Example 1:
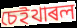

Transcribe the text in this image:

চেইথাৰল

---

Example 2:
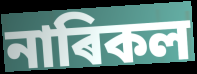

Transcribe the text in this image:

নাৰিকল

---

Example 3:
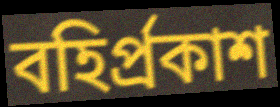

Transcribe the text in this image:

বহিৰ্প্ৰকাশ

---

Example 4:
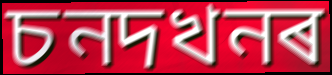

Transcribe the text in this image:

চনদখনৰ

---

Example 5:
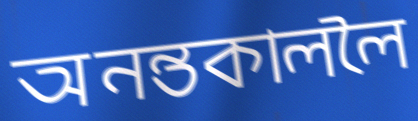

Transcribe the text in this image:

অনন্তকাললৈ